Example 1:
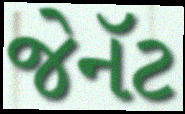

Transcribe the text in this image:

જેનૅટ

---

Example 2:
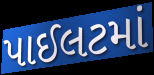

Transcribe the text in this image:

પાઈલટમાં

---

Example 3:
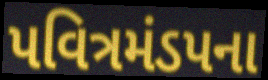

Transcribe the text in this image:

પવિત્રમંડપના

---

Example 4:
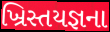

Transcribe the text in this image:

ખ્રિસ્તયજ્ઞના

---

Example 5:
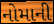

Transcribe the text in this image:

નોમાની